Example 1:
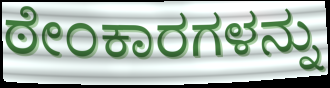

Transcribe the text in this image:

ಠೇಂಕಾರಗಳನ್ನು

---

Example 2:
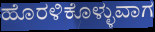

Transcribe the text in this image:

ಹೊರಳಿಕೊಳ್ಳುವಾಗ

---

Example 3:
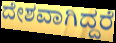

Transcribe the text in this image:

ದೇಶವಾಗಿದ್ದರೆ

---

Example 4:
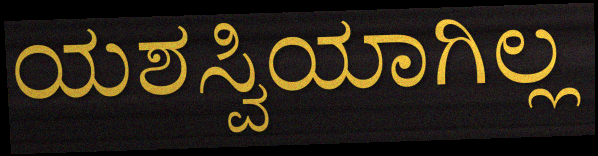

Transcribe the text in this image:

ಯಶಸ್ವಿಯಾಗಿಲ್ಲ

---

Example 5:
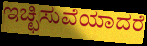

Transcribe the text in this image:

ಇಚ್ಛಿಸುವೆಯಾದರೆ